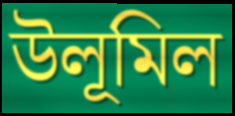
উলূমিল